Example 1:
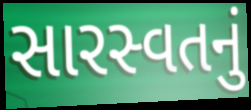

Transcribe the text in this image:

સારસ્વતનું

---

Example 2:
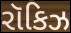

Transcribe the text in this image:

રૉકિઝ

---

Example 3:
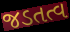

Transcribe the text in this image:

જડતત્વ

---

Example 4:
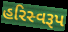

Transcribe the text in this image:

હરિસ્વરૂપ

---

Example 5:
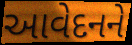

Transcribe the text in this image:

આવેદનને